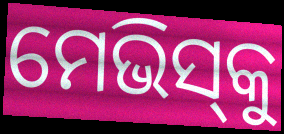
ମେଭିସ୍‌କୁ